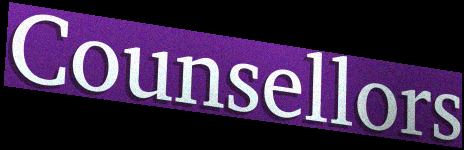
Counsellors